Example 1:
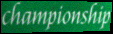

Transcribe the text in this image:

championship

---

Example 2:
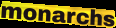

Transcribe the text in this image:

monarchs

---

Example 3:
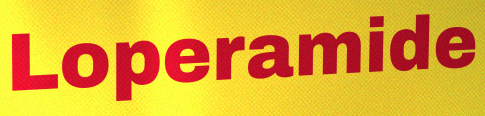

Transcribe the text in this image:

Loperamide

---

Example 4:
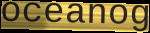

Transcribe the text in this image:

oceanog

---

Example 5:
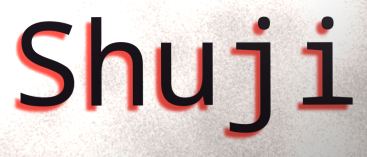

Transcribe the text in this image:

Shuji